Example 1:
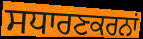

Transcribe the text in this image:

ਸਧਾਰਣਕਰਨਾਂ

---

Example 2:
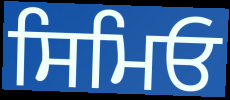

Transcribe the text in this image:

ਸਿਮਿਓ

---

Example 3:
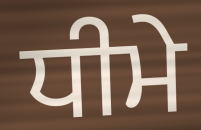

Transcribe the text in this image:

ਧੀਮੇ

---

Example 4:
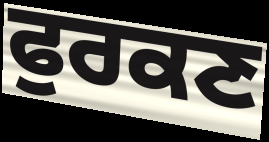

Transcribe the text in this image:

ਫੁਰਕਣ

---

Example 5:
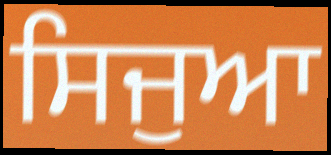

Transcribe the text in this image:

ਸਿਜੁਆ